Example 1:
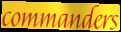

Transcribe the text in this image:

commanders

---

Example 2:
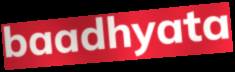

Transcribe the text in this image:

baadhyata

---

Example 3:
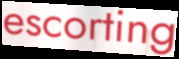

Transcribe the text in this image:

escorting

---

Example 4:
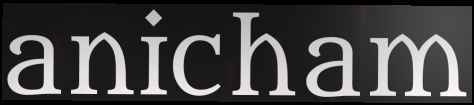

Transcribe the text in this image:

anicham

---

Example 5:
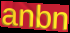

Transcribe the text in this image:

anbn